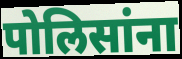
पोलिसांना